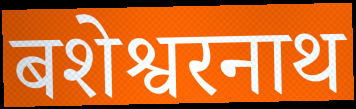
बशेश्वरनाथ